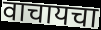
वाचायचा